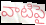
వాటిపై